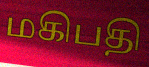
மகிபதி